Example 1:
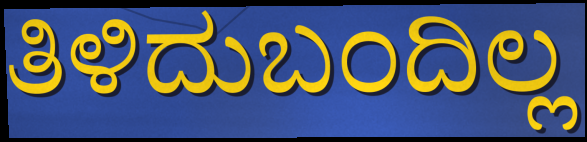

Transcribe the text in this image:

ತಿಳಿದುಬಂದಿಲ್ಲ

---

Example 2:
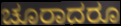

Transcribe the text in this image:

ಚೂರಾದರೂ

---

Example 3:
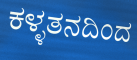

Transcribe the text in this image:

ಕಳ್ಳತನದಿಂದ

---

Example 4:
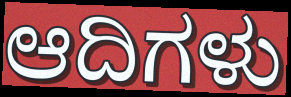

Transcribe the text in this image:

ಆದಿಗಳು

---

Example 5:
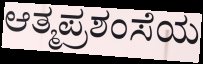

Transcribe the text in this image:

ಆತ್ಮಪ್ರಶಂಸೆಯ